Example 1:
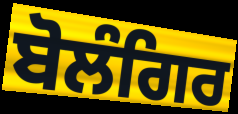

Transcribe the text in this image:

ਬੋਲੰਗਿਰ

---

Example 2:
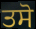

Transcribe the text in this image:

ਤਸੋ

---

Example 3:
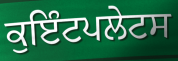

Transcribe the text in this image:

ਕੁਇੰਟਪਲੇਟਸ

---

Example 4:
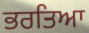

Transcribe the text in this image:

ਭਰਤਿਆ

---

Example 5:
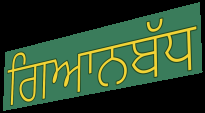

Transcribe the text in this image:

ਗਿਆਨਬੱਧ